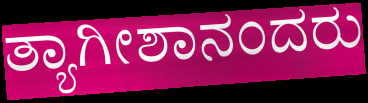
ತ್ಯಾಗೀಶಾನಂದರು